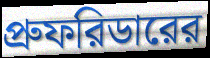
প্রুফরিডারের